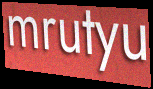
mrutyu